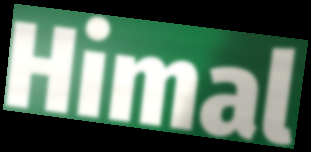
Himal